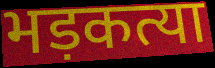
भड़कत्या